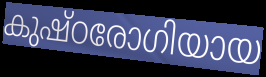
കുഷ്ഠരോഗിയായ